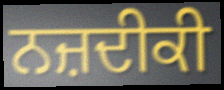
ਨਜ਼ਦੀਕੀ